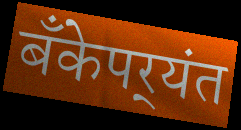
बॅंकेपर्यंत